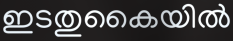
ഇടതുകൈയിൽ